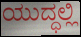
ಯುದ್ಧಲ್ಲಿ